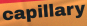
capillary